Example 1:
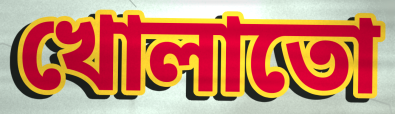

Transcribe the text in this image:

খোলাতো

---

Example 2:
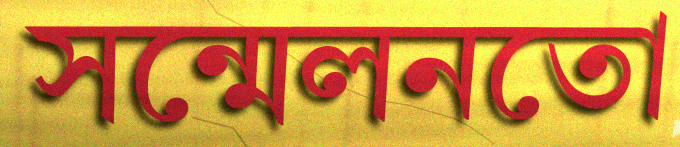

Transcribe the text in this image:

সন্মেলনতো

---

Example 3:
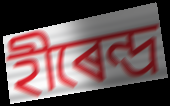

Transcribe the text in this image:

হীৰেন্দ্ৰ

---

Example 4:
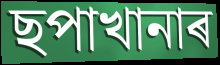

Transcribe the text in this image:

ছপাখানাৰ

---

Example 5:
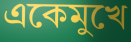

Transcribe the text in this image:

একেমুখে